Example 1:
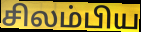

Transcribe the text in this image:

சிலம்பிய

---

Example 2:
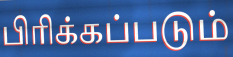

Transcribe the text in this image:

பிரிக்கப்படும்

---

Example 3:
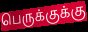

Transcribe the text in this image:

பெருக்குக்கு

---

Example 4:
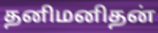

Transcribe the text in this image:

தனிமனிதன்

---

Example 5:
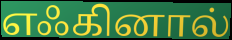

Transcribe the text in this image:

எஃகினால்